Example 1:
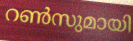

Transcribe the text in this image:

റൺസുമായി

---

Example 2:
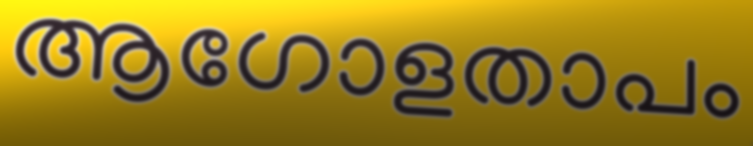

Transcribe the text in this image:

ആഗോളതാപം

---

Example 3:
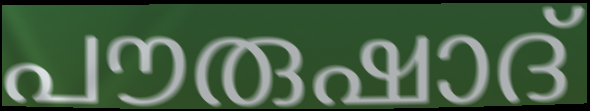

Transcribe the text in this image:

പൗരുഷാദ്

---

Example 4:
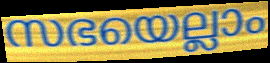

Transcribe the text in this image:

സഭയെല്ലാം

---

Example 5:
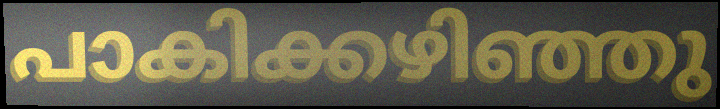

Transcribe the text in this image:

പാകിക്കഴിഞ്ഞു